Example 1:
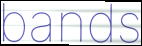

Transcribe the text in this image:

bands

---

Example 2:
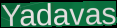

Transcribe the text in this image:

Yadavas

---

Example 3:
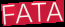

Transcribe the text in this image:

FATA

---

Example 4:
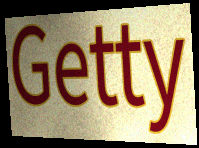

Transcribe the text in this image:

Getty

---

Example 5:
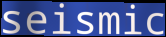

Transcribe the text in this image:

seismic